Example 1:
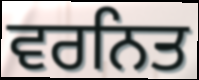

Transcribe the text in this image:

ਵਰਨਿਤ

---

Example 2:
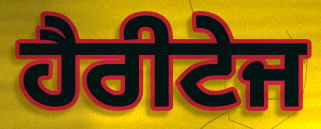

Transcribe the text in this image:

ਹੈਰੀਟੇਜ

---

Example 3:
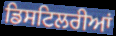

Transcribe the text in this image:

ਡਿਸਟਿਲਰੀਆਂ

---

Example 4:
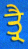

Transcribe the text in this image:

ਤ੍ਰ੍ਰੈ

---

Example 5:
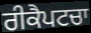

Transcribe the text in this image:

ਰੀਕੈਪਟਚਾ